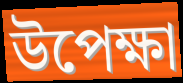
উপেক্ষা